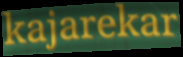
kajarekar